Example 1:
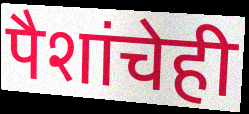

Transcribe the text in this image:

पैशांचेही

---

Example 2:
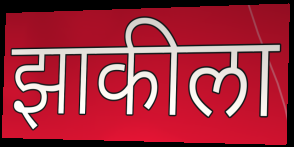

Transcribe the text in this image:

झाकीला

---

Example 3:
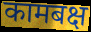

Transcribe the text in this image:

कामबक्ष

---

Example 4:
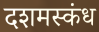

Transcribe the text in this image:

दशमस्कंध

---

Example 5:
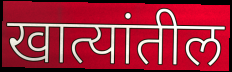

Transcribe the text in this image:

खात्यांतील